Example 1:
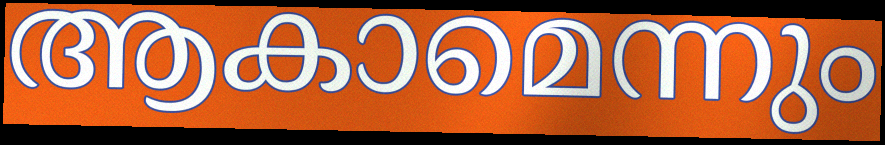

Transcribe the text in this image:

ആകാമെന്നും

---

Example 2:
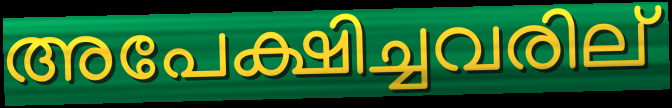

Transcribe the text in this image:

അപേക്ഷിച്ചവരില്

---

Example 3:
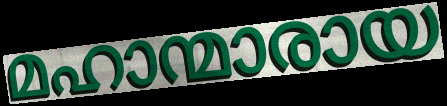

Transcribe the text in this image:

മഹാന്മാരായ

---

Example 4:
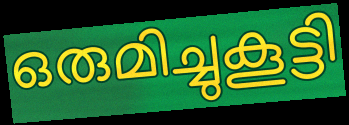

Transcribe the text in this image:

ഒരുമിച്ചുകൂട്ടി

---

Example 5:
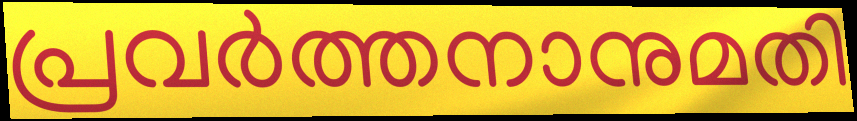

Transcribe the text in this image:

പ്രവർത്തനാനുമതി